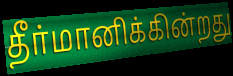
தீர்மானிக்கின்றது